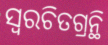
ସ୍ଵରଚିତଗ୍ରନ୍ଥି